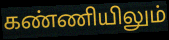
கண்ணியிலும்